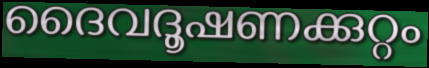
ദൈവദൂഷണക്കുറ്റം